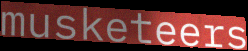
musketeers